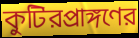
কুটিরপ্রাঙ্গণের